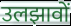
उलझावों